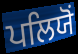
ਪਲਿਯੋਂ